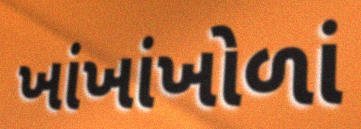
ખાંખાંખોળાં